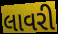
લાવરી